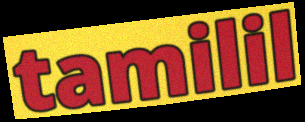
tamilil